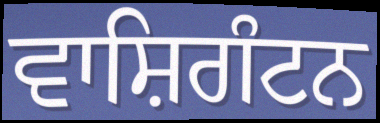
ਵਾਸ਼ਿਗੰਟਨ